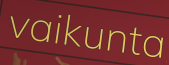
vaikunta